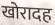
खोरादह